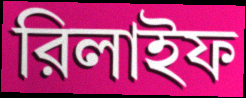
রিলাইফ